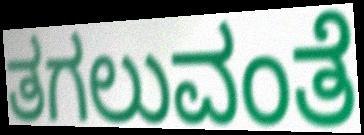
ತಗಲುವಂತೆ